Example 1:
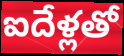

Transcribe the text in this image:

ఐదేళ్లతో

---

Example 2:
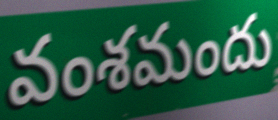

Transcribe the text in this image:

వంశమందు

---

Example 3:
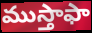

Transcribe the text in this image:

ముస్తాఫా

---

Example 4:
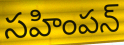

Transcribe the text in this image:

సహింపన్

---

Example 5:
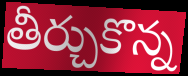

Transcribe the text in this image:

తీర్చుకొన్న